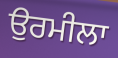
ਉਰਮੀਲਾ